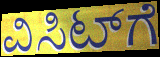
ವಿಸಿಟ್‌ಗೆ